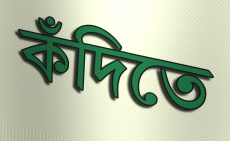
কঁদিতে